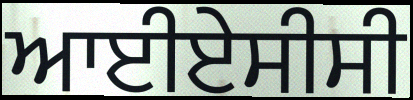
ਆਈਏਸੀਸੀ